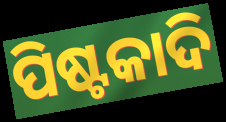
ପିଷ୍ଟକାଦି